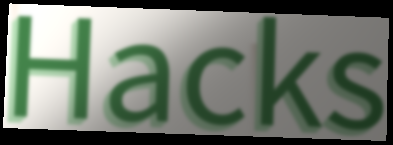
Hacks